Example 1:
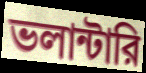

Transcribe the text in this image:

ভলান্টারি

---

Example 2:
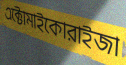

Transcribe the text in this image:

এক্টোমাইকোরাইজা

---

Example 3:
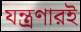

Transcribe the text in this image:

যন্ত্রণারই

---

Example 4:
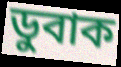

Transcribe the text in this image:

ডুবাক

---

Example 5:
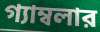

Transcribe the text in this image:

গ্যাম্বলার